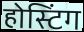
होस्टिंग